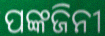
ପଙ୍କଜିନୀ